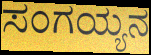
ಸಂಗಯ್ಯನ